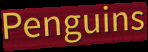
Penguins